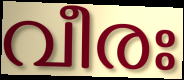
വീരഃ